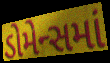
ડોમેન્સમાં